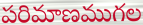
పరిమాణముగల